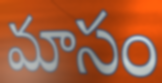
మాసం